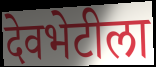
देवभेटीला